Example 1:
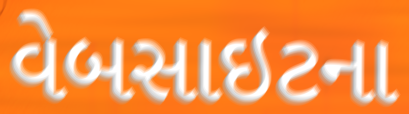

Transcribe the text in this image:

વેબસાઇટના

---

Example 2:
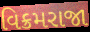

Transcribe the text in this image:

વિક્રમરાજા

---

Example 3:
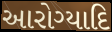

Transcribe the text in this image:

આરોગ્યાદિ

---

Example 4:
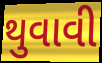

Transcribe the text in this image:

થુવાવી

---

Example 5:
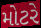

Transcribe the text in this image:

મોટરે